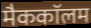
मैककॉलम